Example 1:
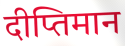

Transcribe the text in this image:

दीप्तिमान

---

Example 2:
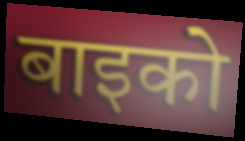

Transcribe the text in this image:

बाइको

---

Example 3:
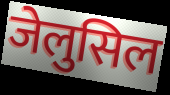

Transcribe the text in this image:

जेलुसिल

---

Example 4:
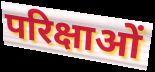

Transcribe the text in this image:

परिक्षाओं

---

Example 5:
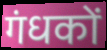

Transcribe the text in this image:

गंधकों